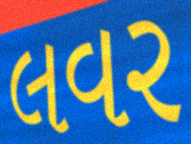
લવર